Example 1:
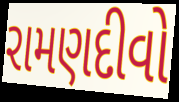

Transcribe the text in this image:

રામણદીવો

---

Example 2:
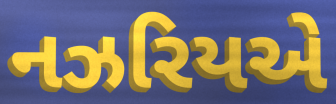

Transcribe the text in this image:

નઝરિયએ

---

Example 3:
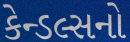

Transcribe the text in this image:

કેન્ડલ્સનો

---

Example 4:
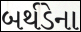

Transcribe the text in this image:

બર્થડેના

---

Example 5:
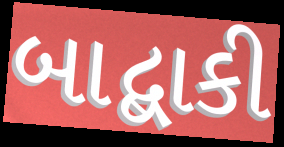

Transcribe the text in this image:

બાદ્બાકી